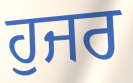
ਹੁਜਰ